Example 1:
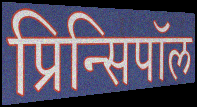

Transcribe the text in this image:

प्रिन्सिपॉल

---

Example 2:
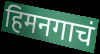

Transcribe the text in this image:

हिमनगाचं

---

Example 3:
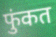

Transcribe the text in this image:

फुंकत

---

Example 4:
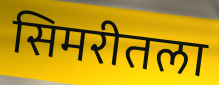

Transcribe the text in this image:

सिमरीतला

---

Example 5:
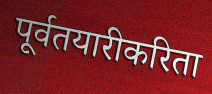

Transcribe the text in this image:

पूर्वतयारीकरिता